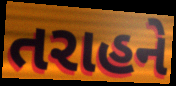
તરાહને